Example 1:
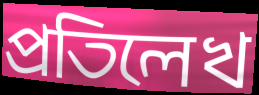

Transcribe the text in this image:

প্রতিলেখ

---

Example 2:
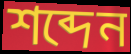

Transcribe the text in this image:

শব্দেন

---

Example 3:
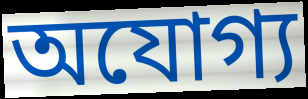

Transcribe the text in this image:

অযোগ্য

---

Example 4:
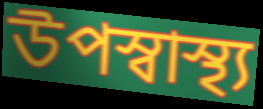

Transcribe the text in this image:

উপস্বাস্থ্য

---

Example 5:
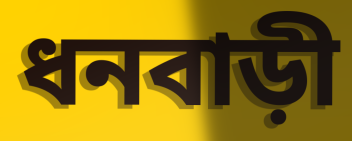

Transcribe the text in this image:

ধনবাড়ী